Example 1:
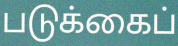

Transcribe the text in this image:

படுக்கைப்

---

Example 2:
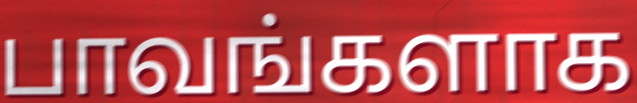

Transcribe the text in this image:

பாவங்களாக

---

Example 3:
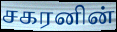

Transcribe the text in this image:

சகரனின்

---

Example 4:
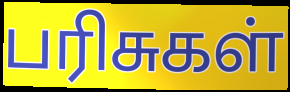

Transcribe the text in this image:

பரிசுகள்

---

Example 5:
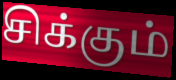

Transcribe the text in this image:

சிக்கும்